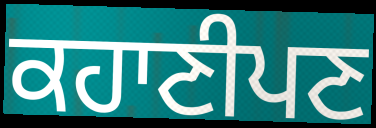
ਕਹਾਣੀਪਣ